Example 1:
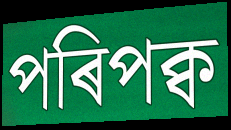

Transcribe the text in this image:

পৰিপক্ব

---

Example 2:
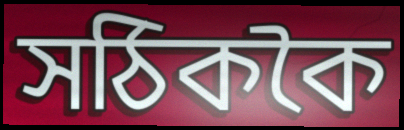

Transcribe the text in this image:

সঠিককৈ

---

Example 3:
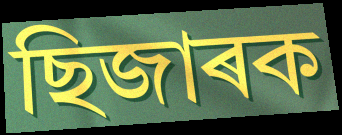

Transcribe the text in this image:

ছিজাৰক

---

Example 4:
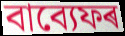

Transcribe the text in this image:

বাব্যেফৰ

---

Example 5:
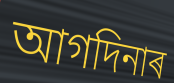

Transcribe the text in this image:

আগদিনাৰ